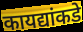
कायद्यांकडे